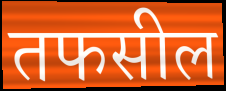
तफसील